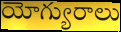
యోగ్యురాలు